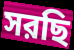
সরছি